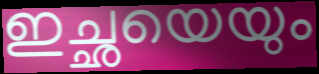
ഇച്ഛയെയും